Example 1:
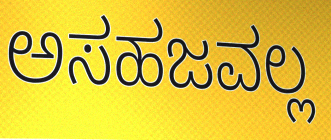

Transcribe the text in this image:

ಅಸಹಜವಲ್ಲ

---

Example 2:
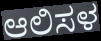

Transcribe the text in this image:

ಆಲಿಸಳ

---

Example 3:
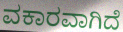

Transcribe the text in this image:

ವಕಾರವಾಗಿದೆ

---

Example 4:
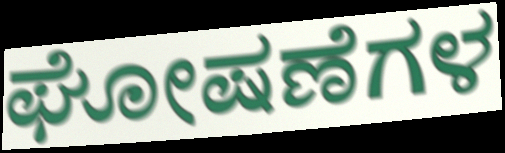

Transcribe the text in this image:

ಘೋಷಣೆಗಳ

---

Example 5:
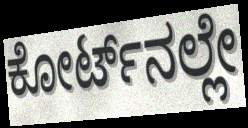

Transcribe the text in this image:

ಕೋರ್ಟ್‌ನಲ್ಲೇ